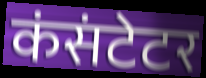
कंसंटेटर